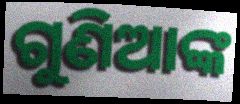
ଗୁଣିଆଙ୍କ